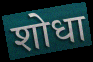
शोधा